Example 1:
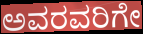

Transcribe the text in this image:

ಅವರವರಿಗೇ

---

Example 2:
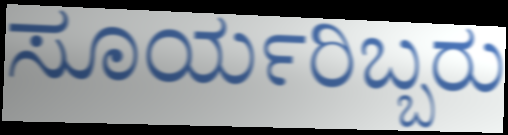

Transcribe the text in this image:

ಸೂರ್ಯರಿಬ್ಬರು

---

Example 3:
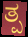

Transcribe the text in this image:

ತ್ಪ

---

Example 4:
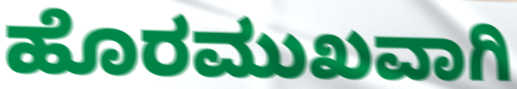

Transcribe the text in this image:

ಹೊರಮುಖವಾಗಿ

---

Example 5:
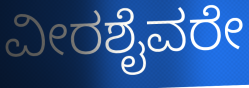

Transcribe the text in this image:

ವೀರಶೈವರೇ